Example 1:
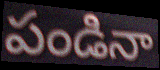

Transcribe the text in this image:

పండినా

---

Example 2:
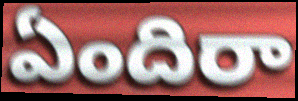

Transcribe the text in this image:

ఏందిరా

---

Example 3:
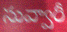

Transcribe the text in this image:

సువ్వారీ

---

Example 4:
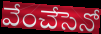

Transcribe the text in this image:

వేంచేసెనో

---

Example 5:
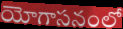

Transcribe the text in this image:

యోగాసనంలో